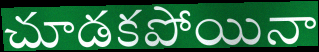
చూడకపోయినా